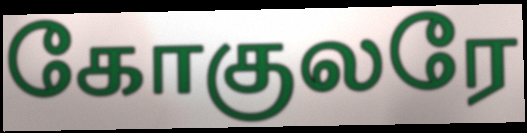
கோகுலரே